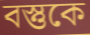
বস্তুকে